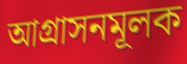
আগ্রাসনমূলক